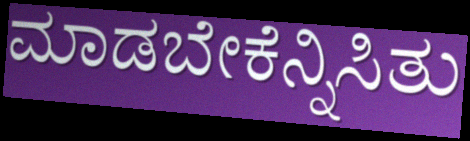
ಮಾಡಬೇಕೆನ್ನಿಸಿತು